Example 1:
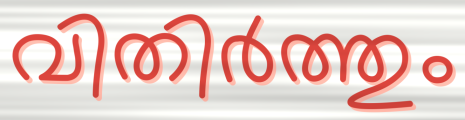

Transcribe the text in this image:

വിതിർത്തും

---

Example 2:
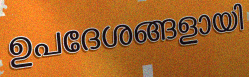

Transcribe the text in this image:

ഉപദേശങ്ങളായി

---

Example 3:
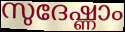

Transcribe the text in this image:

സുദേഷ്ണാം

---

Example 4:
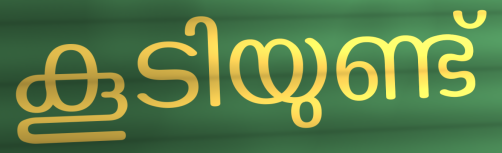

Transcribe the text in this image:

കൂടിയുണ്ട്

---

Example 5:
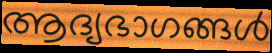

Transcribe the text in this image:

ആദ്യഭാഗങ്ങൾ